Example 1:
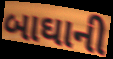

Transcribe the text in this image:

બાઘાની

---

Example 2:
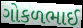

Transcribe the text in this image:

ગોકળભાઈ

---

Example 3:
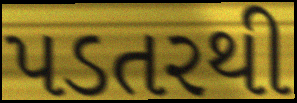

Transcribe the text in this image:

પડતરથી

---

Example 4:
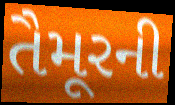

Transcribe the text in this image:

તૈમૂરની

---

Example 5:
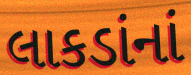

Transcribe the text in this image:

લાકડાંનાં